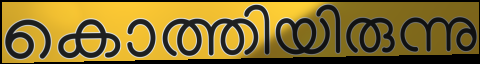
കൊത്തിയിരുന്നു